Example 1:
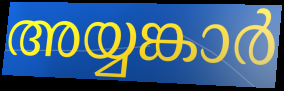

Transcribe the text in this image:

അയ്യങ്കാർ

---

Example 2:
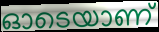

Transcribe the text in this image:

ഓടെയാണ്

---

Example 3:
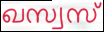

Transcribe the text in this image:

ഖസ്വസ്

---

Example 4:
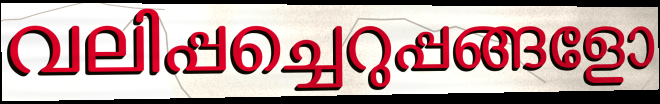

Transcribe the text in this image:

വലിപ്പച്ചെറുപ്പങ്ങളോ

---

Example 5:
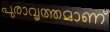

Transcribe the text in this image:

പുരാവൃത്തമാണ്